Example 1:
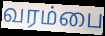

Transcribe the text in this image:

வரம்பை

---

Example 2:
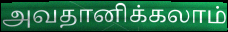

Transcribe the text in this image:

அவதானிக்கலாம்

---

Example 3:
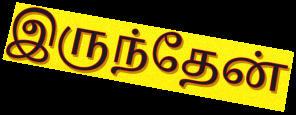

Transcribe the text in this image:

இருந்தேன்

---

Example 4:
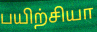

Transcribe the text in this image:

பயிற்சியா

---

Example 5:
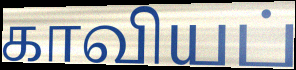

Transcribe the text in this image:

காவியப்